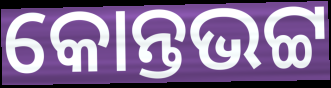
କୋନ୍ତଭଟ୍ଟ